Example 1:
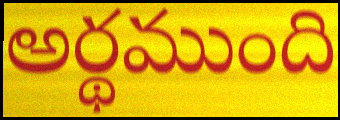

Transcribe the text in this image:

అర్థముంది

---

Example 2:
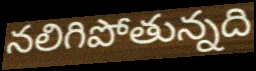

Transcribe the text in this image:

నలిగిపోతున్నది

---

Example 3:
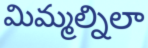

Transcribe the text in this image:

మిమ్మల్నిలా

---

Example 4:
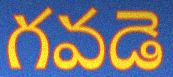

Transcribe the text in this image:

గవడె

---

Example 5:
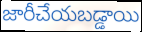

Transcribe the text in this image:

జారీచేయబడ్డాయి